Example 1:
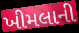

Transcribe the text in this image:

ખીમલાની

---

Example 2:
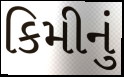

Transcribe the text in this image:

કિમીનું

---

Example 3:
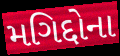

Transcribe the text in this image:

મગિદ્દોના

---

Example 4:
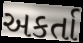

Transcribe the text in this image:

અકર્તા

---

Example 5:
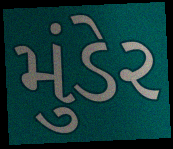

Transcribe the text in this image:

મુંડેર